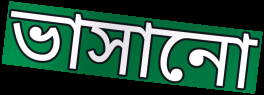
ভাসানো